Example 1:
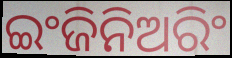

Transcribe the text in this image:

ଇଂଜିନିଅରିଂ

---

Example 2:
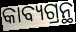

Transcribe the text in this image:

କାବ୍ୟଗ୍ରନ୍ଥ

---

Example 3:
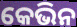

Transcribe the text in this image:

କେଭିନ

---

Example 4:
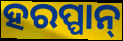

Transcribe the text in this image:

ହରପ୍ପାନ୍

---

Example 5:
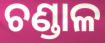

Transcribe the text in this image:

ଚଣ୍ଡାଳ